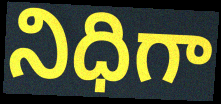
నిధిగా